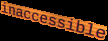
inaccessible